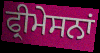
ਫ੍ਰੀਮੇਸਨਾਂ